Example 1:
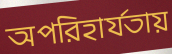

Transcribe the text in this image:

অপরিহার্যতায়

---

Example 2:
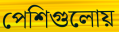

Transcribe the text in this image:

পেশিগুলোয়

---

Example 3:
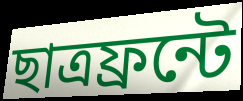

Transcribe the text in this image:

ছাত্রফ্রন্টে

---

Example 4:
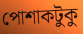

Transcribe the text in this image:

পোশাকটুকু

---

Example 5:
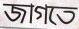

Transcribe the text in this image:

জাগতে